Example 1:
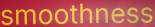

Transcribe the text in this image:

smoothness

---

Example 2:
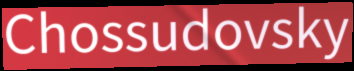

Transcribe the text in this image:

Chossudovsky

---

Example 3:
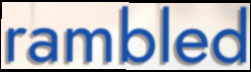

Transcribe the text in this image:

rambled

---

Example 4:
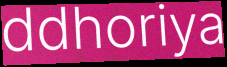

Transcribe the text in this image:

ddhoriya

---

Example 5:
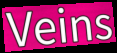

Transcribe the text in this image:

Veins